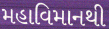
મહાવિમાનથી